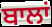
ਬਾਲਾਂ